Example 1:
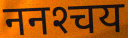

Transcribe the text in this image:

ननश्चय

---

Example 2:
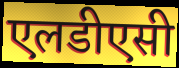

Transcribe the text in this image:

एलडीएसी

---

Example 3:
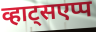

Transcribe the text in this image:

व्हाट्सएप्प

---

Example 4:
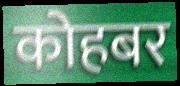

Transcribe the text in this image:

कोहबर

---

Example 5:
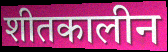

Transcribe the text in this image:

शीतकालीन